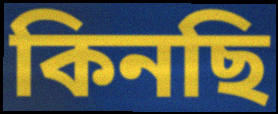
কিনছি